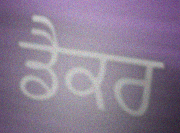
ਡੈਕਰ